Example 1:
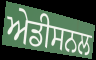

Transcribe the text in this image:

ਅੇਡੀਸਨਲ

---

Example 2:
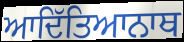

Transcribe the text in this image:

ਆਦਿੱਤਿਆਨਾਥ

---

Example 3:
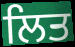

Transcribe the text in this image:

ਲਿਤ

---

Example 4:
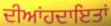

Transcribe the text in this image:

ਦੀਆਂਹਦਾਇਤਾਂ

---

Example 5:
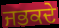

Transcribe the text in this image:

ਜਭਕਦੇ